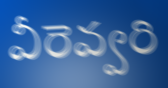
వీరెవ్వరి